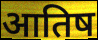
आतिष